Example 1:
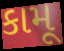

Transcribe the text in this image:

કામૂ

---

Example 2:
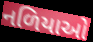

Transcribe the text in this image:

નળિયાઓ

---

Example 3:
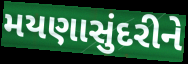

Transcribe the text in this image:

મયણાસુંદરીને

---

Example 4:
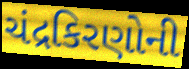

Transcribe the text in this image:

ચંદ્રકિરણોની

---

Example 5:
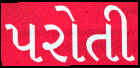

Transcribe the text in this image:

પરોતી